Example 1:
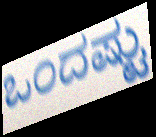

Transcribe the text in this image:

ಒಂದಷ್ಟು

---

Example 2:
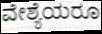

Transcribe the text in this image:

ವೇಶ್ಯೆಯರೂ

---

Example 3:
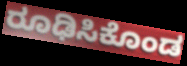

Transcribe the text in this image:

ರೂಢಿಸಿಕೊಂಡ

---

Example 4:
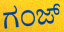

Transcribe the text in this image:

ಗಂಜ್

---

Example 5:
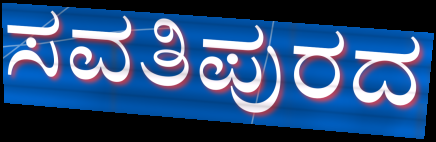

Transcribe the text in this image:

ಸವತಿಪುರದ